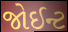
જોઈન્ટ